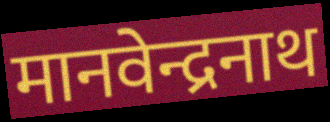
मानवेन्द्रनाथ